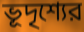
ভূদৃশ্যের